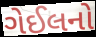
ગેઈલનો